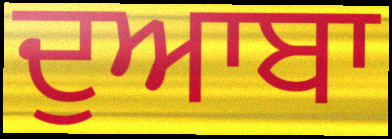
ਦੁਆਬਾ